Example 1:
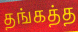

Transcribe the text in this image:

தங்கத்த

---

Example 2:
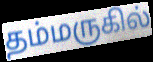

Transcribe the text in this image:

தம்மருகில்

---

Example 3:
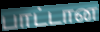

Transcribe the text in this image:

பாட்டான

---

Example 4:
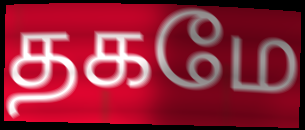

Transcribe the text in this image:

தகமே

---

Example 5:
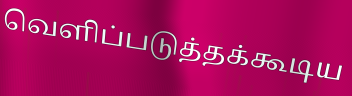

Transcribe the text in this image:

வெளிப்படுத்தக்கூடிய